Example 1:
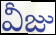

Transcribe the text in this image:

వీజు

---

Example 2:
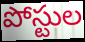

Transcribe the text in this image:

పోస్టుల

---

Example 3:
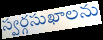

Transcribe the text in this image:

స్వర్గసుఖాలను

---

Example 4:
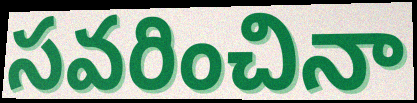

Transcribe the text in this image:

సవరించినా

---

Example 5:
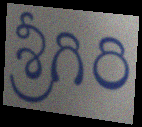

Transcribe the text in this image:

శ్రీగిరి